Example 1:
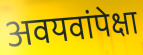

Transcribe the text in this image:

अवयवांपेक्षा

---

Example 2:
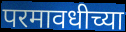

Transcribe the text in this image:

परमावधीच्या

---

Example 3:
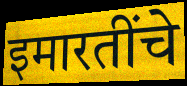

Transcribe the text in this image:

इमारतींचे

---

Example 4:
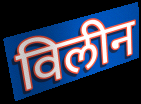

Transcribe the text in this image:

विलीन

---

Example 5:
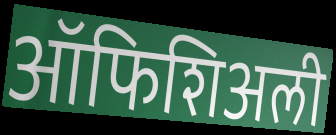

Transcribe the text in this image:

ऑफिशिअली